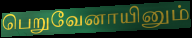
பெறுவேனாயினும்